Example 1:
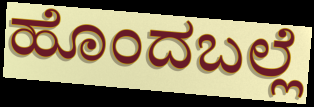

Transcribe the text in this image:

ಹೊಂದಬಲ್ಲೆ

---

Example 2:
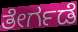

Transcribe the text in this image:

ತೇರ್ಗಡೆ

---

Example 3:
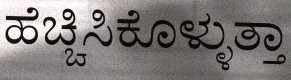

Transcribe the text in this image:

ಹೆಚ್ಚಿಸಿಕೊಳ್ಳುತ್ತಾ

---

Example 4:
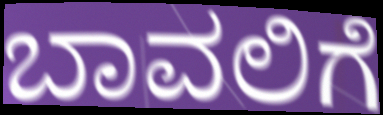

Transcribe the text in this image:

ಬಾವಲಿಗೆ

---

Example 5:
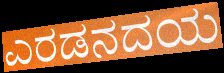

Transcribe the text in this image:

ಎರಡನದಯ